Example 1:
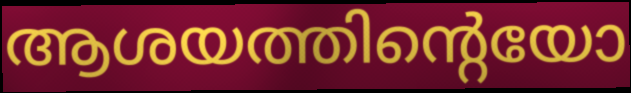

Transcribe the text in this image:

ആശയത്തിന്റെയോ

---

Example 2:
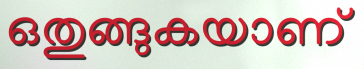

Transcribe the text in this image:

ഒതുങ്ങുകയാണ്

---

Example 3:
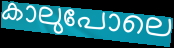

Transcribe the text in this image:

കാലുപോലെ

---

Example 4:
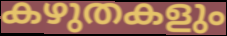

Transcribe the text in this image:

കഴുതകളും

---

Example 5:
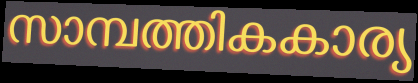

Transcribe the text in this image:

സാമ്പത്തികകാര്യ